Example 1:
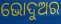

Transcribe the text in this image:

ଭୋଦୁଅର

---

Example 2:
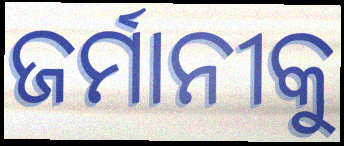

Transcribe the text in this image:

ଜର୍ମାନୀକୁ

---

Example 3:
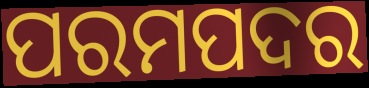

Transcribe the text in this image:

ପରମପଦର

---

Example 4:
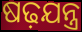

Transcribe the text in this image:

ଷଢ଼ଯନ୍ତ୍ର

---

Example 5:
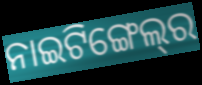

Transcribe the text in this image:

ନାଇଟିଙ୍ଗେଲ୍‌ର